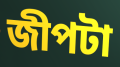
জীপটা